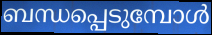
ബന്ധപ്പെടുമ്പോൾ